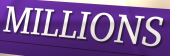
MILLIONS